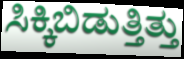
ಸಿಕ್ಕಿಬಿಡುತ್ತಿತ್ತು